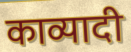
काव्यादी